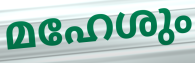
മഹേശും